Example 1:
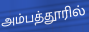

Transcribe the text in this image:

அம்பத்தூரில்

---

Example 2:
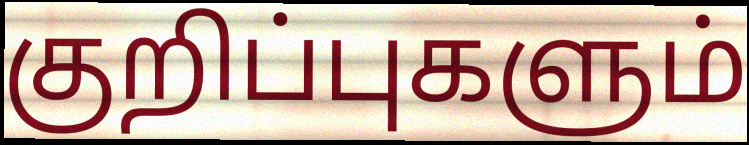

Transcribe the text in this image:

குறிப்புகளும்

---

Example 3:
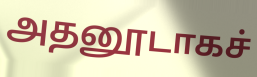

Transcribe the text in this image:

அதனூடாகச்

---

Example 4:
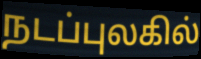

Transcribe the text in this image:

நடப்புலகில்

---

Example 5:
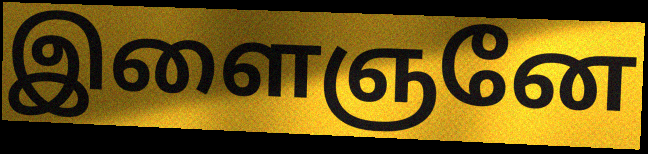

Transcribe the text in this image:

இளைஞனே